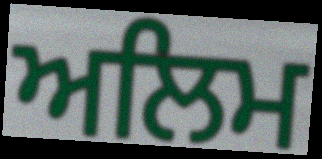
ਅਲਿਮ